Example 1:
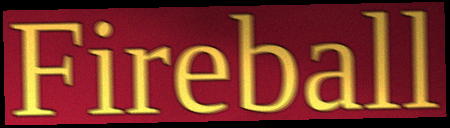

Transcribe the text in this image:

Fireball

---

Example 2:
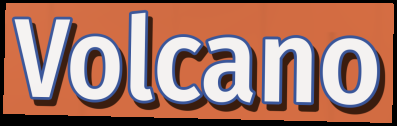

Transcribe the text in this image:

Volcano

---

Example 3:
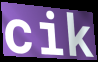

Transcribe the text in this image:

cik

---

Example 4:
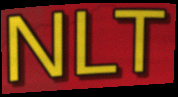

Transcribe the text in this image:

NLT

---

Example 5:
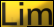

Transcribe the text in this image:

Lim